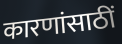
कारणांसाठीं